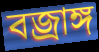
বজ্রাঙ্গ